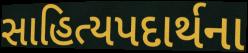
સાહિત્યપદાર્થના